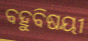
ବହୁବିଷୟୀ